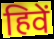
हिवें